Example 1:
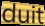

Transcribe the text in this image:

duit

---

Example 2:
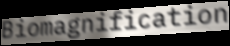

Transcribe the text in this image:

Biomagnification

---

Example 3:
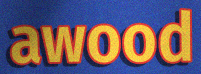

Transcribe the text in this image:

awood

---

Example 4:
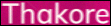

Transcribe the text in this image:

Thakore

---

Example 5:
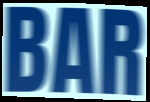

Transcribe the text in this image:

BAR